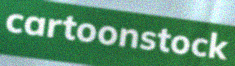
cartoonstock